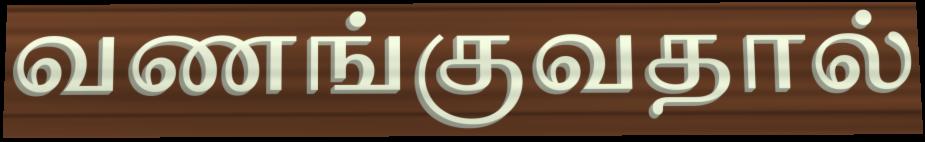
வணங்குவதால்